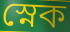
স্নেক